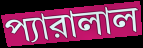
প্যারালাল